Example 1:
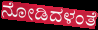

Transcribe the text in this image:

ನೋಡಿದಳಂತೆ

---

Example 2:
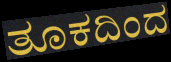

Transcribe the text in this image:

ತೂಕದಿಂದ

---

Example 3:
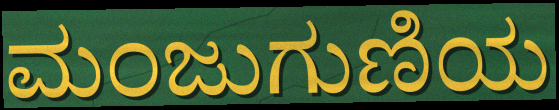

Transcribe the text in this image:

ಮಂಜುಗುಣಿಯ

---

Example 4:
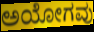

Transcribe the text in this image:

ಅಯೋಗವು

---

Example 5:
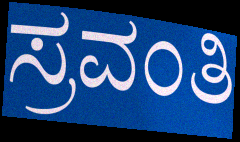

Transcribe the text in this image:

ಸ್ರವಂತಿ